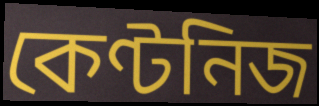
কেণ্টনিজ